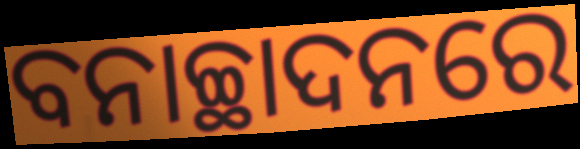
ବନାଚ୍ଛାଦନରେ